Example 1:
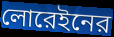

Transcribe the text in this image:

লোরেইনের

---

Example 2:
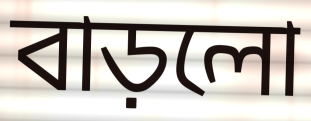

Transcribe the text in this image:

বাড়লো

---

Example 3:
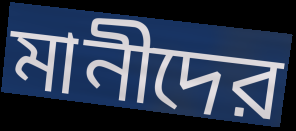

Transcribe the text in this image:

মানীদের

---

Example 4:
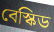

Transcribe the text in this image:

বেস্কিড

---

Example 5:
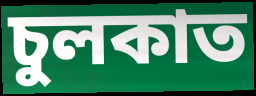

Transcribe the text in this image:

চুলকাত